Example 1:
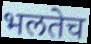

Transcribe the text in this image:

भलतेच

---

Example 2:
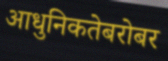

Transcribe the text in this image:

आधुनिकतेबरोबर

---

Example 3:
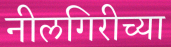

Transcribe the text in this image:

नीलगिरीच्या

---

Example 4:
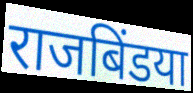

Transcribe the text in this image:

राजबिंडया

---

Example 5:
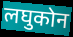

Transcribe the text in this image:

लघुकोन